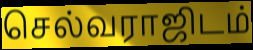
செல்வராஜிடம்